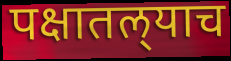
पक्षातल्याच